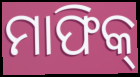
ମାଫିକ୍